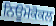
ਨਿਊਮੋਕੋਕਲ